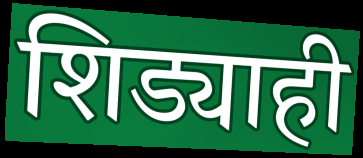
शिड्याही